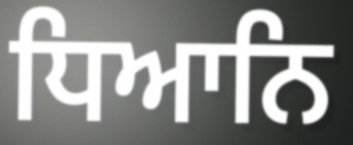
ਧਿਆਨਿ